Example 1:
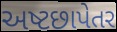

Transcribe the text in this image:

અષ્ટછાપેતર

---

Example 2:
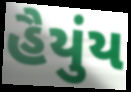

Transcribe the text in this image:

હૈયુંય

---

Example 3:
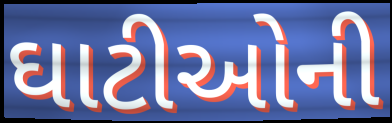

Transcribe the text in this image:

ઘાટીઓની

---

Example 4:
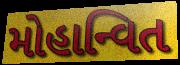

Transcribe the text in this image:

મોહાન્વિત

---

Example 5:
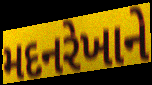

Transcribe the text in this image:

મદનરેખાને